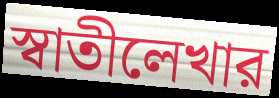
স্বাতীলেখার